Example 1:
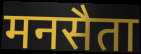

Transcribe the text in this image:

मनसैता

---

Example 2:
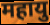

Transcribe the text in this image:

महायु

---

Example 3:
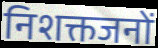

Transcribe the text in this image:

निशक्तजनों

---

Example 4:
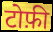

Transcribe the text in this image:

टोफ़ी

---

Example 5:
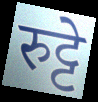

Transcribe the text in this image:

रुट्टे